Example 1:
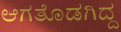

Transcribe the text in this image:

ಆಗತೊಡಗಿದ್ದ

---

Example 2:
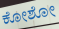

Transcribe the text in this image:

ಕೋಶೋ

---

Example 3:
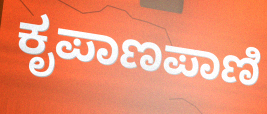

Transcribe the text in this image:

ಕೃಪಾಣಪಾಣಿ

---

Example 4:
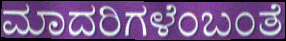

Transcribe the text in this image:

ಮಾದರಿಗಳೆಂಬಂತೆ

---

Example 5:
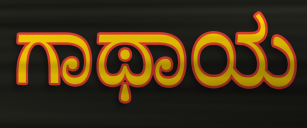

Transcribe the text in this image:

ಗಾಥಾಯ